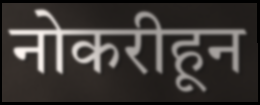
नोकरीहून